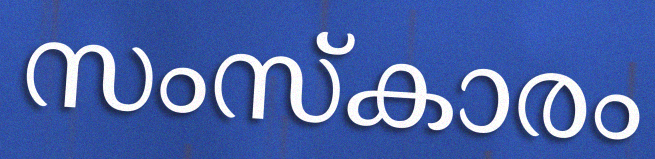
സംസ്കാരം